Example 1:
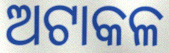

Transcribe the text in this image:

ଅଟାକଳ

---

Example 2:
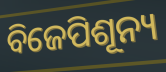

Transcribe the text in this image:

ବିଜେପିଶୂନ୍ୟ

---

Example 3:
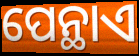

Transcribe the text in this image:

ପେନ୍ଥାଏ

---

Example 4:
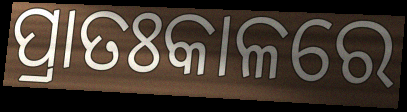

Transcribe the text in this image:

ପ୍ରାତଃକାଳରେ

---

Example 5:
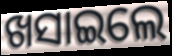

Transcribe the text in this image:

ଖସାଇଲେ